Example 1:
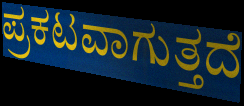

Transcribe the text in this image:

ಪ್ರಕಟವಾಗುತ್ತದೆ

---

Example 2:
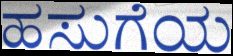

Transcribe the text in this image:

ಹಸುಗೆಯ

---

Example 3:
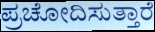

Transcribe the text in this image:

ಪ್ರಚೋದಿಸುತ್ತಾರೆ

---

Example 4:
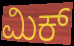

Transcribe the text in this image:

ಮಿಕ್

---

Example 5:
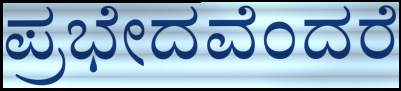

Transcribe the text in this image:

ಪ್ರಭೇದವೆಂದರೆ